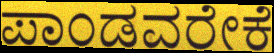
ಪಾಂಡವರೇಕೆ